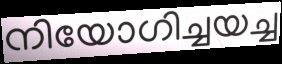
നിയോഗിച്ചയച്ച